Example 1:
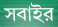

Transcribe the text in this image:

সবাইর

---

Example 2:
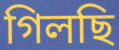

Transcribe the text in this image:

গিলছি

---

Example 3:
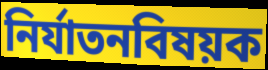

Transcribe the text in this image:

নির্যাতনবিষয়ক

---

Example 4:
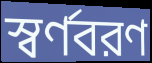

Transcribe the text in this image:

স্বর্ণবরণ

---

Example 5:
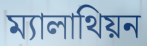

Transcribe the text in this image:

ম্যালাথিয়ন